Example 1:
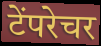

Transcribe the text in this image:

टेंपरेचर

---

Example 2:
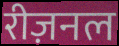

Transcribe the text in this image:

रीज़नल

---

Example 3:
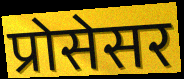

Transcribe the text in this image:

प्रोसेसर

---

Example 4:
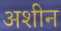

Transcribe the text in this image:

अशीन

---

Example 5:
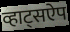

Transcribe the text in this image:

व्‍हाट्सऐप